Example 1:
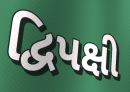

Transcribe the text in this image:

દ્વિપક્ષી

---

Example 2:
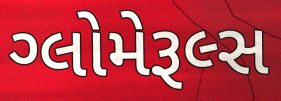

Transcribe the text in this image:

ગ્લોમેરૂલ્સ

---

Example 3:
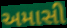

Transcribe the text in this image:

અમાસી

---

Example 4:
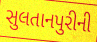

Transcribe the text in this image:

સુલતાનપુરીની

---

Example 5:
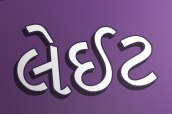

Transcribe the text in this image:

લેઈટ